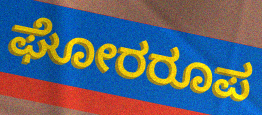
ಘೋರರೂಪ